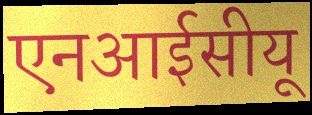
एनआईसीयू